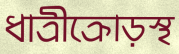
ধাত্রীক্রোড়স্থ